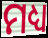
ମଧ୍ୟ